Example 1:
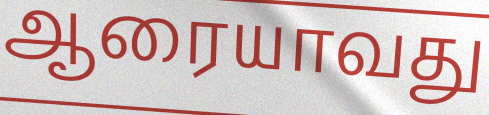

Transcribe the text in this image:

ஆரையாவது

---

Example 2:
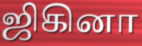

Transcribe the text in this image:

ஜிகினா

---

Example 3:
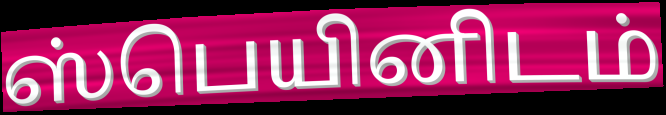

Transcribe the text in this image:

ஸ்பெயினிடம்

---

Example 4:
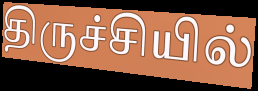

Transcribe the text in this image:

திருச்சியில்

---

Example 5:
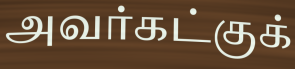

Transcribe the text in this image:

அவர்கட்குக்